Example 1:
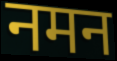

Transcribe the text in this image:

नमन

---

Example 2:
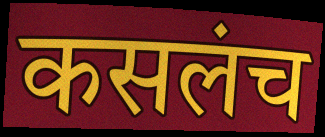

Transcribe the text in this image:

कसलंच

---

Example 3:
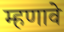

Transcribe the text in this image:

म्हणावे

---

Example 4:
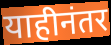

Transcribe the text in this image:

याहीनंतर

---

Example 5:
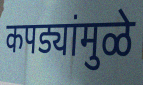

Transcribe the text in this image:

कपड्यांमुळे